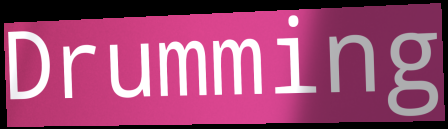
Drumming